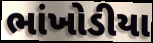
ભાંખોડીયા